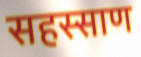
सहस्साण